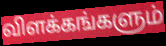
விளக்கங்களும்